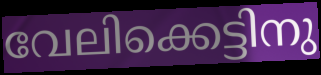
വേലിക്കെട്ടിനു